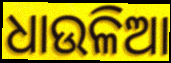
ଧାଉଳିଆ